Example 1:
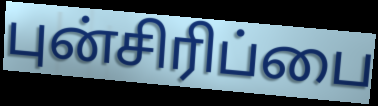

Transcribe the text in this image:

புன்சிரிப்பை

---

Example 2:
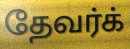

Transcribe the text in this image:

தேவர்க்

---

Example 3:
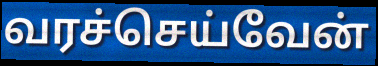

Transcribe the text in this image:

வரச்செய்வேன்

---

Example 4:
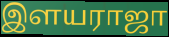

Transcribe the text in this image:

இளயராஜா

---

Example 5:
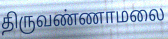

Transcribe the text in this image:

திருவண்ணாமலை